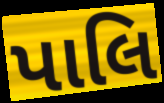
પાલિ